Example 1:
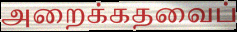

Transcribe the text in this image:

அறைக்கதவைப்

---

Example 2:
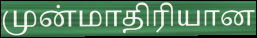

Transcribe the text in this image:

முன்மாதிரியான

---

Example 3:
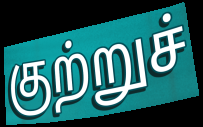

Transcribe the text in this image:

குற்றுச்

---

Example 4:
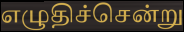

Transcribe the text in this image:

எழுதிச்சென்று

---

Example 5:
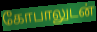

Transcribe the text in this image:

கோபாலுடன்